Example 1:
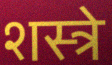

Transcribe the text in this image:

शस्त्रे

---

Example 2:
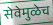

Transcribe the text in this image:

सेवेमुळेच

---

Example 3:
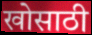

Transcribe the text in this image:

खोसाठी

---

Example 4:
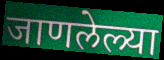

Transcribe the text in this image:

जाणलेल्या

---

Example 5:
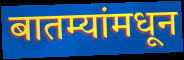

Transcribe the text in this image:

बातम्यांमधून